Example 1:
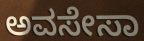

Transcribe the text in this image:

ಅವಸೇಸಾ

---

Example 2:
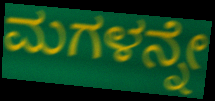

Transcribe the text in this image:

ಮಗಳನ್ನೇ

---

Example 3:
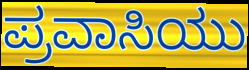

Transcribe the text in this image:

ಪ್ರವಾಸಿಯು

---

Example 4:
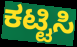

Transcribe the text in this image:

ಕಟ್ಟಿಸಿ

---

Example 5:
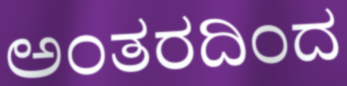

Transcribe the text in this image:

ಅಂತರದಿಂದ